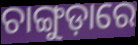
ଚାଙ୍ଗୁଡ଼ାରେ